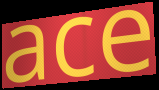
ace